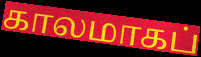
காலமாகப்